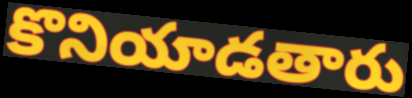
కొనియాడతారు